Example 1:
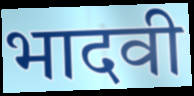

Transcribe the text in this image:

भादवी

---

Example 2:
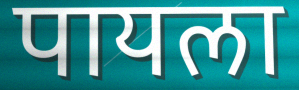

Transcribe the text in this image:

पायला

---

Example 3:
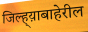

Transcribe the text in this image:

जिल्ह्य़ाबाहेरील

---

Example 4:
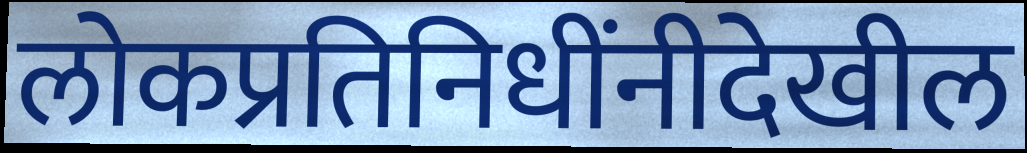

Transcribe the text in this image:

लोकप्रतिनिधींनीदेखील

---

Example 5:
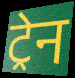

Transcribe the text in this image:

ट्रेन